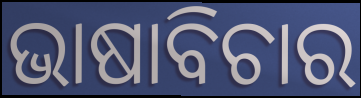
ଭାଷାବିଚାର